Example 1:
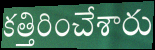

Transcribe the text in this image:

కత్తిరించేశారు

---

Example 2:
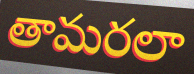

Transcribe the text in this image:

తామరలా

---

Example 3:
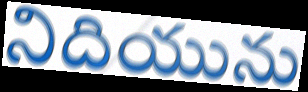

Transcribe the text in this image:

నిదియును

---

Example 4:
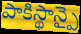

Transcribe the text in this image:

పాకిస్థాన్పై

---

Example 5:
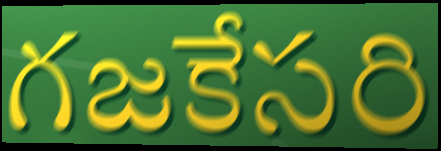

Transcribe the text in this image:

గజకేసరి